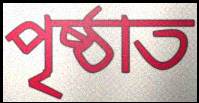
পৃষ্ঠাত